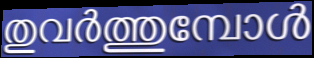
തുവർത്തുമ്പോൾ